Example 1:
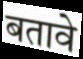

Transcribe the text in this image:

बतावे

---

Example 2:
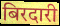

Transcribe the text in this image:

बिरदारी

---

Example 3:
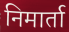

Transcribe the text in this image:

निमार्ता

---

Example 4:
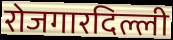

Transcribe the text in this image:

रोजगारदिल्ली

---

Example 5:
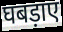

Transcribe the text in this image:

घबड़ाए